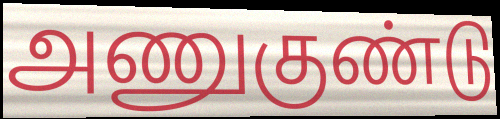
அணுகுண்டு